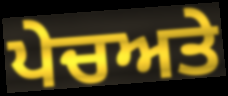
ਪੇਚਅਤੇ